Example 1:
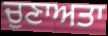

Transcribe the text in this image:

ਚੁਣਾਅਤਾ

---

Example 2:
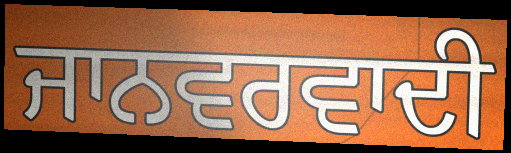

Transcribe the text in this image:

ਜਾਨਵਰਵਾਦੀ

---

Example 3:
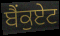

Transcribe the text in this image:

ਬੈਂਕੁਏਟ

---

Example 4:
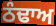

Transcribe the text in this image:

ਠੰਢਾਅ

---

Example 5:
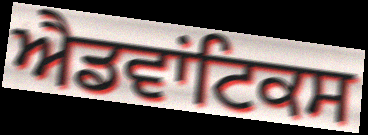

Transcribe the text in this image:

ਐਡਵਾਂਟਿਕਸ